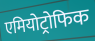
एमियोट्रोफिक